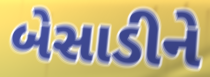
બેસાડીને